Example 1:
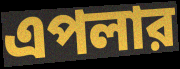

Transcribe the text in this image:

এপলার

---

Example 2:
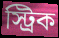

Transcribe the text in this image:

স্ট্রিক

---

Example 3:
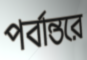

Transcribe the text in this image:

পর্বান্তরে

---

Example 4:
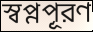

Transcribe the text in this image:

স্বপ্নপূরণ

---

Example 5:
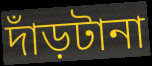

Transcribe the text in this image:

দাঁড়টানা